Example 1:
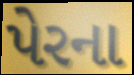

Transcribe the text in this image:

પેરના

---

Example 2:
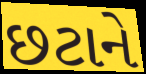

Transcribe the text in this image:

છટાને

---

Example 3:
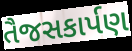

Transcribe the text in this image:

તૈજસકાર્પણ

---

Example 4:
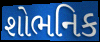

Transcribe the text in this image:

શોભનિક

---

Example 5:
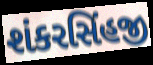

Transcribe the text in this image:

શંકરસિંહજી